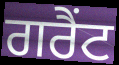
ਗਰੈਂਟ